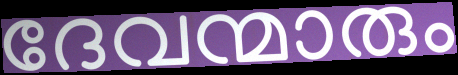
ദേവന്മാരും